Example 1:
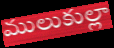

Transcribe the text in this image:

ములుకుల్లా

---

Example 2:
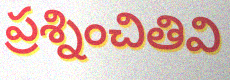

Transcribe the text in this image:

ప్రశ్నించితివి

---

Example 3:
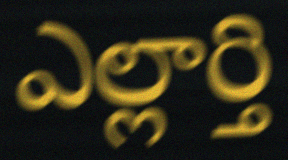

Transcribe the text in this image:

ఎల్లార్తి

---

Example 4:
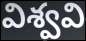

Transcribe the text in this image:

విశ్వవి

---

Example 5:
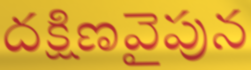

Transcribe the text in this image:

దక్షిణవైపున